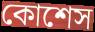
কোশেস